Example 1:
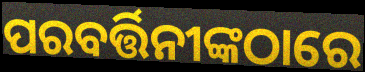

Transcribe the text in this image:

ପରବର୍ତ୍ତିନୀଙ୍କଠାରେ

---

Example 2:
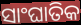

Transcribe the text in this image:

ସାଂଘାତିକ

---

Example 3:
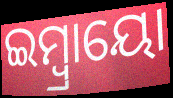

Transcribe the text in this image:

ଇମ୍ବ୍ରାୟୋ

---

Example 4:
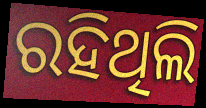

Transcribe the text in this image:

ରହିଥିଲି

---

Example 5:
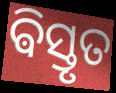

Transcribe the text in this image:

ଵିସ୍ତୃତ